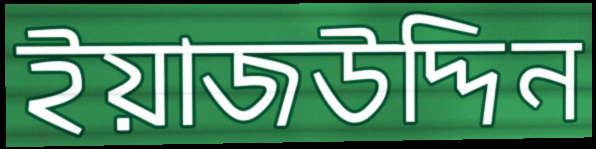
ইয়াজউদ্দিন